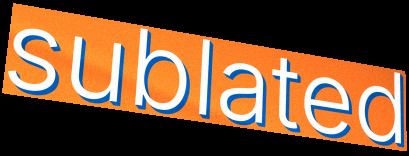
sublated